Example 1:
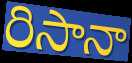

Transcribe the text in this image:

రిసానా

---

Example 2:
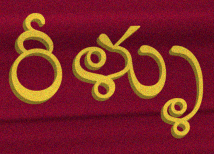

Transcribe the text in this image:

రీళ్ళు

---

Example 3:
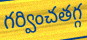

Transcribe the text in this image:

గర్వించతగ్గ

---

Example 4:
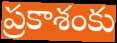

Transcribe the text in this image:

ప్రకాశంకు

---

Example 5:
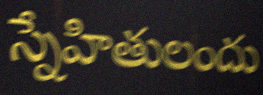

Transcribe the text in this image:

స్నేహితులందు